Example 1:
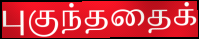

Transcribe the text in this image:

புகுந்ததைக்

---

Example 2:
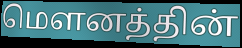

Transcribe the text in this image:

மௌனத்தின்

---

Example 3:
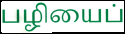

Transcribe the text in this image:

பழியைப்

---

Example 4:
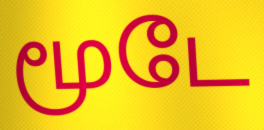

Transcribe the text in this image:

மூடே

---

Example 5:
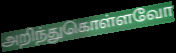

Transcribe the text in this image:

அறிந்துகொள்ளவோ